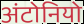
अंटोनियो